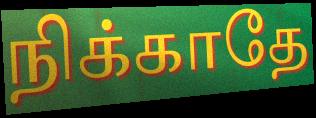
நிக்காதே